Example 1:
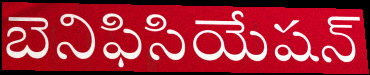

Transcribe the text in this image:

బెనిఫిసియేషన్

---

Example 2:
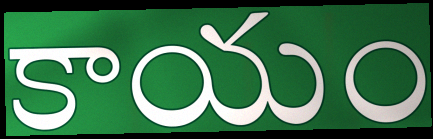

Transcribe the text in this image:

కాయం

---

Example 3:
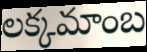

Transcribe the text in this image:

లక్కమాంబ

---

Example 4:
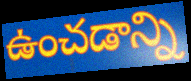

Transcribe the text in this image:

ఉంచడాన్ని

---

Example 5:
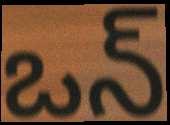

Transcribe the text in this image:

ఒన్